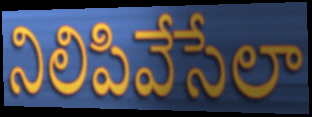
నిలిపివేసేలా